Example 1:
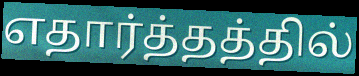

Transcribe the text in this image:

எதார்த்தத்தில்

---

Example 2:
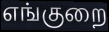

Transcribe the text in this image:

எங்குறை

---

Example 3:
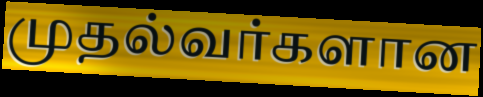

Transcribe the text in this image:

முதல்வர்களான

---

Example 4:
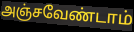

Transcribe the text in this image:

அஞ்சவேண்டாம்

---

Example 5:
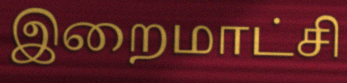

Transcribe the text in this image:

இறைமாட்சி